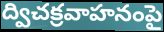
ద్విచక్రవాహనంపై